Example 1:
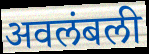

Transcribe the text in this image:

अवलंबली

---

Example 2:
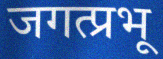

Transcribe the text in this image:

जगत्प्रभू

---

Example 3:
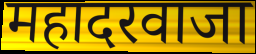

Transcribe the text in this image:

महादरवाजा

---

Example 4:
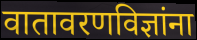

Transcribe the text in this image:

वातावरणविज्ञांना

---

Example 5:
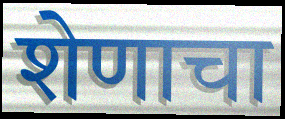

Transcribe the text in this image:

शेणाचा